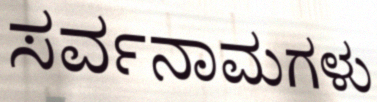
ಸರ್ವನಾಮಗಳು